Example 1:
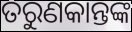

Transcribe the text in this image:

ତରୁଣକାନ୍ତଙ୍କ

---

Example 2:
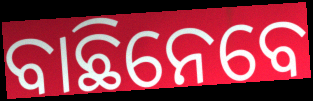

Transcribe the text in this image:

ବାଛିନେବେ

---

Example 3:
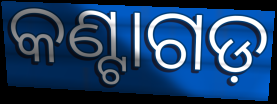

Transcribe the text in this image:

କଣ୍ଟାଗଡ଼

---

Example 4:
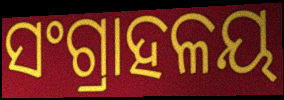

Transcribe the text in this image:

ସଂଗ୍ରାହଳୟ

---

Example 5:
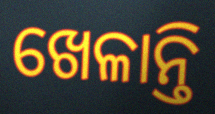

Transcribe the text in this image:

ଖେଳାନ୍ତି